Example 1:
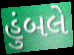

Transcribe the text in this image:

હુંબલે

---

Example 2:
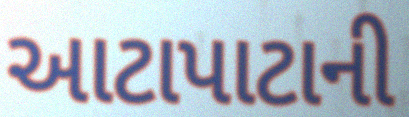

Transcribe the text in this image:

આટાપાટાની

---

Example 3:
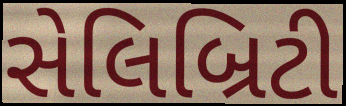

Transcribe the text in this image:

સેલિબ્રિટી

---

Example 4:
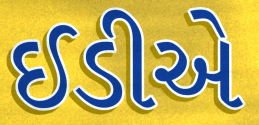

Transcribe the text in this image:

ઈડીએ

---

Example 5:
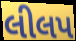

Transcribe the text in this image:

લીલપ